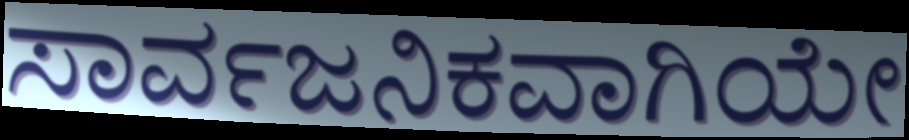
ಸಾರ್ವಜನಿಕವಾಗಿಯೇ